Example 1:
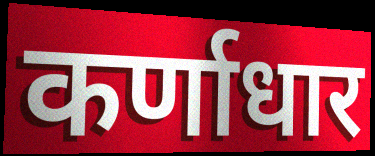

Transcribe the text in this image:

कर्णाधार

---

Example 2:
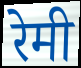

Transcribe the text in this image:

रेमी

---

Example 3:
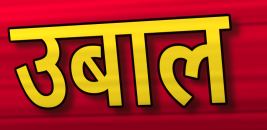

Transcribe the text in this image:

उबाल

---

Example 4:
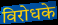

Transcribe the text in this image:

विरोधके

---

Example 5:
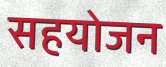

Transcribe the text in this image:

सहयोजन